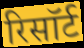
रिसॉर्ट